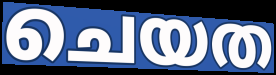
ചെയത